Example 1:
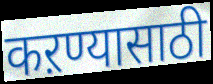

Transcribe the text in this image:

कऱण्यासाठी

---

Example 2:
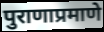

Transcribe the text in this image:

पुराणाप्रमाणे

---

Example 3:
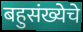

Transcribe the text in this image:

बहुसंख्येचे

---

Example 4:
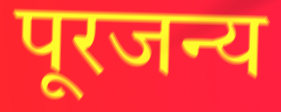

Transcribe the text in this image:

पूरजन्य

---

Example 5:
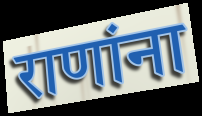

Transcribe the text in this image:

राणांना